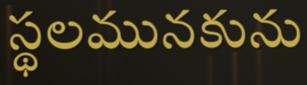
స్థలమునకును